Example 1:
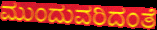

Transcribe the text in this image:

ಮುಂದುವರಿದಂತೆ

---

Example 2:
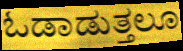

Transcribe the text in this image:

ಓಡಾಡುತ್ತಲೂ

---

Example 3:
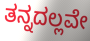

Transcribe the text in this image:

ತನ್ನದಲ್ಲವೇ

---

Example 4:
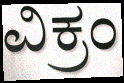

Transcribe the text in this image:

ವಿಕ್ರಂ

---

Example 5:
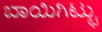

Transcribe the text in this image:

ಬಾಯಿಗಿಟ್ಟು